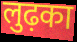
लुढ़का